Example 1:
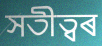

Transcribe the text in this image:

সতীত্বৰ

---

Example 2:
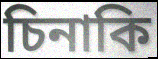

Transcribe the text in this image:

চিনাকি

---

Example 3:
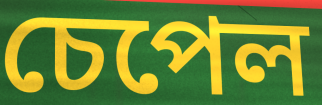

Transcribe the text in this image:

চেপেল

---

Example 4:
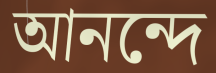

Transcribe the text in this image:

আনন্দে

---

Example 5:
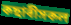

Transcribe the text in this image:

কছাৰীসকল